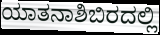
ಯಾತನಾಶಿಬಿರದಲ್ಲಿ